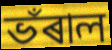
ভঁৰাল